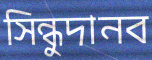
সিন্ধুদানব